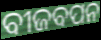
ବୀଜବପନ